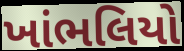
ખાંભલિયો